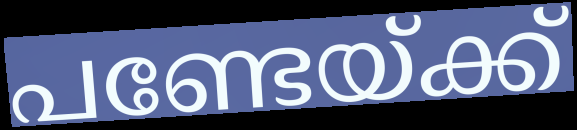
പണ്ടേയ്ക്ക്